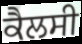
ਕੈਲਸੀ